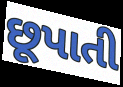
છૂપાતી